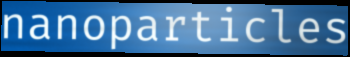
nanoparticles